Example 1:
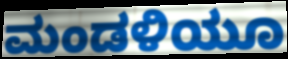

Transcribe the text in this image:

ಮಂಡಳಿಯೂ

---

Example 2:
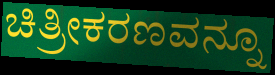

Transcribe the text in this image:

ಚಿತ್ರೀಕರಣವನ್ನೂ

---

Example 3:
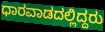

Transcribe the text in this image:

ಧಾರವಾಡದಲ್ಲಿದ್ದರು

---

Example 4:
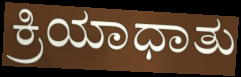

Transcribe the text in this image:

ಕ್ರಿಯಾಧಾತು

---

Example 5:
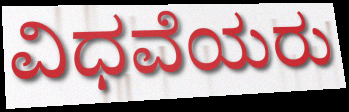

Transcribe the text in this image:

ವಿಧವೆಯರು